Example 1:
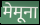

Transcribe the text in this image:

मेमूना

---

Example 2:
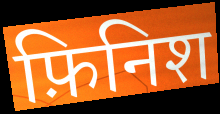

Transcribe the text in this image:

फ़िनिश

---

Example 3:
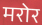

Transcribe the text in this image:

मरोर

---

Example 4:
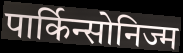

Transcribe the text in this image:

पार्किन्सोनिज्म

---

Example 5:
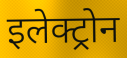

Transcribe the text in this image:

इलेक्ट्रोन